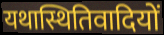
यथास्थितिवादियों